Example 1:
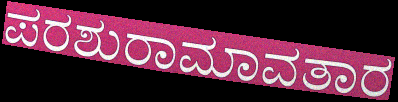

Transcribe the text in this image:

ಪರಶುರಾಮಾವತಾರ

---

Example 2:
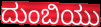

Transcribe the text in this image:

ದುಂಬಿಯು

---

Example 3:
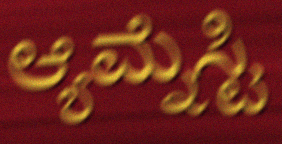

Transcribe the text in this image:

ಆ್ಯಮ್ನೆಸ್ಟಿ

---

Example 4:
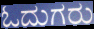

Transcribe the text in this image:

ಓದುಗರು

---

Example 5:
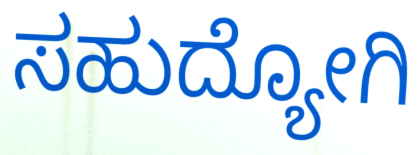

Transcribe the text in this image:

ಸಹುದ್ಯೋಗಿ